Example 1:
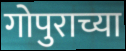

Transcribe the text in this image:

गोपुराच्या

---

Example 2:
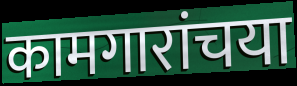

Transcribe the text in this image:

कामगारांचया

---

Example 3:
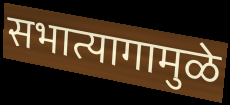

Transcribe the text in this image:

सभात्यागामुळे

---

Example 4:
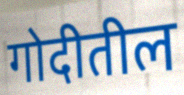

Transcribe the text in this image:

गोदीतील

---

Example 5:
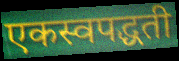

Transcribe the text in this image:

एकस्वपद्धती